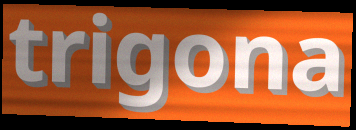
trigona